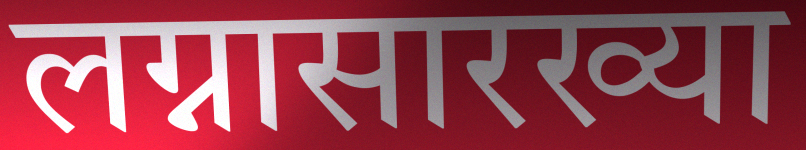
लग्नासारख्या